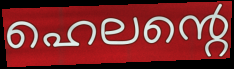
ഹെലന്റെ